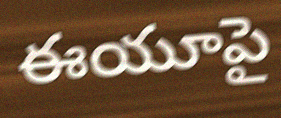
ఈయూపై